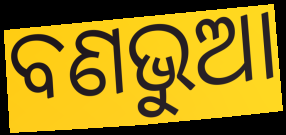
ବଣଭୁଆ